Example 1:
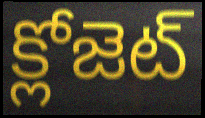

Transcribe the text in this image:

క్లోజెట్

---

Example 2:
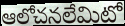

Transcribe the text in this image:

ఆలోచనలేమిటో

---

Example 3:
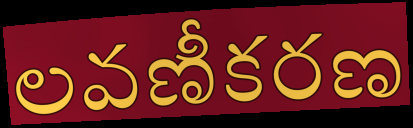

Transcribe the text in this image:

లవణీకరణ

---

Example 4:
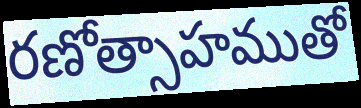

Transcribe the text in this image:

రణోత్సాహముతో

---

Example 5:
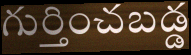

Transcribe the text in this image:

గుర్తించబడ్డ